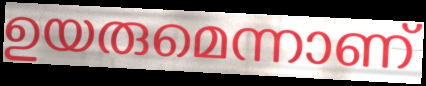
ഉയരുമെന്നാണ്